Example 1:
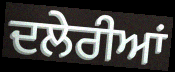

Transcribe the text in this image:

ਦਲੇਰੀਆਂ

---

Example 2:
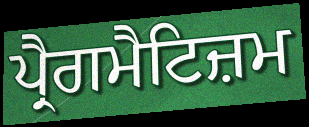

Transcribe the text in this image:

ਪ੍ਰੈਗਮੈਟਿਜ਼ਮ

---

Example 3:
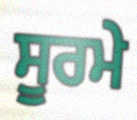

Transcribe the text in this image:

ਸੂਰਮੇ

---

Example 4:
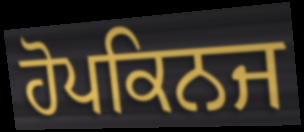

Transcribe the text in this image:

ਹੋਪਕਿਨਜ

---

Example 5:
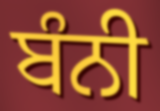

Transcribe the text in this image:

ਬੰਨੀ